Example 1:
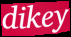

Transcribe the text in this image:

dikey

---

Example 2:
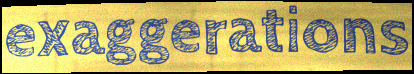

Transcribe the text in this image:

exaggerations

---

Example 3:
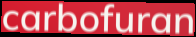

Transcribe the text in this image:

carbofuran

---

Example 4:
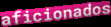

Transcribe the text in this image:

aficionados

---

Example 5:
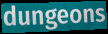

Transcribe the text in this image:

dungeons